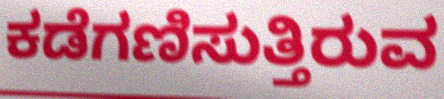
ಕಡೆಗಣಿಸುತ್ತಿರುವ